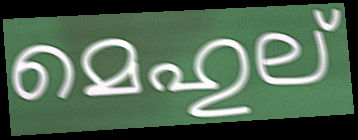
മെഹുല്